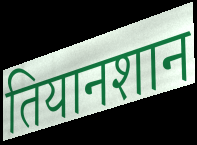
तियानशान